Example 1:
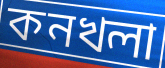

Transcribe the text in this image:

কনখলা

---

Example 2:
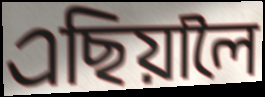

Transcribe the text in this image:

এছিয়ালৈ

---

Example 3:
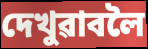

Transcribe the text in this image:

দেখুৱাবলৈ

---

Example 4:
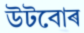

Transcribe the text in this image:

উটবোৰ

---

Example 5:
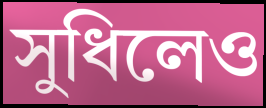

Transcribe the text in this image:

সুধিলেও